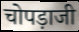
चोपड़ाजी